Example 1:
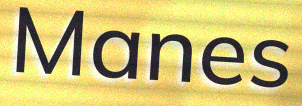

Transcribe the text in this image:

Manes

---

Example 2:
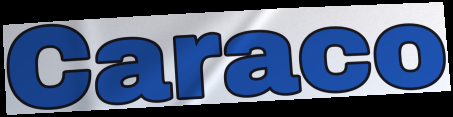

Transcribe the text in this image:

Caraco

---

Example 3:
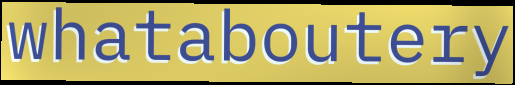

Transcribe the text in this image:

whataboutery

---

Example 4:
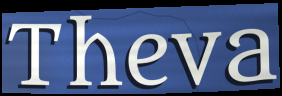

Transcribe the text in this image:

Theva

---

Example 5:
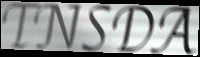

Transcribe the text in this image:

TNSDA